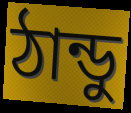
ঠান্ডু